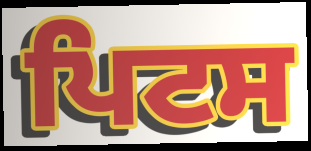
ਪਿਟਸ